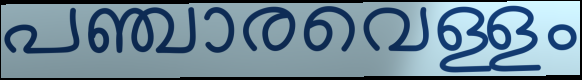
പഞ്ചാരവെള്ളം